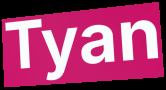
Tyan